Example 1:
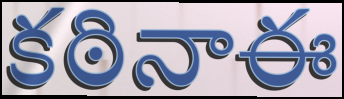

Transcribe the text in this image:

కఠినాఈ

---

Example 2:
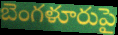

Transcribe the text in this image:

బెంగళూరుపై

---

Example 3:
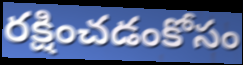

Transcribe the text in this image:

రక్షించడంకోసం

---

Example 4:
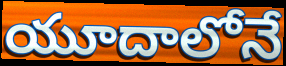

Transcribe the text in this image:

యూదాలోనే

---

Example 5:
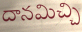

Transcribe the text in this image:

దానమిచ్చి